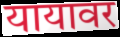
यायावर